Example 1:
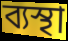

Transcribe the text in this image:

ব্যস্থা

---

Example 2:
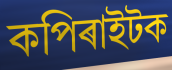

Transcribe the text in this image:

কপিৰাইটক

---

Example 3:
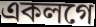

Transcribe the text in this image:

একলগে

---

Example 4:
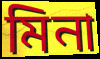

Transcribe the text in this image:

মিনা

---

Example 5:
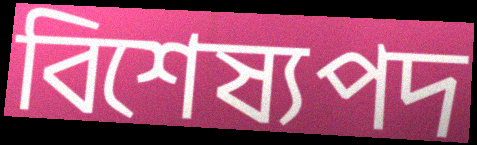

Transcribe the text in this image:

বিশেষ্যপদ